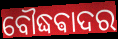
ବୌଦ୍ଧଵାଦର